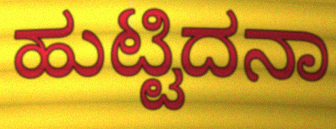
ಹುಟ್ಟಿದನಾ